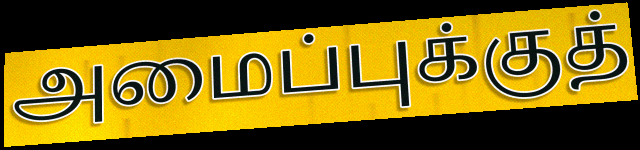
அமைப்புக்குத்